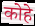
कोहे